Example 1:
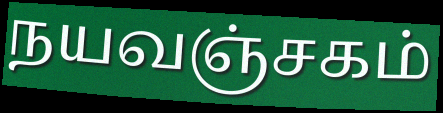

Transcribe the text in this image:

நயவஞ்சகம்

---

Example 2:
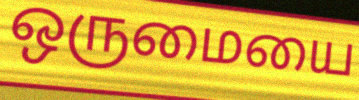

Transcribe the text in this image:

ஒருமையை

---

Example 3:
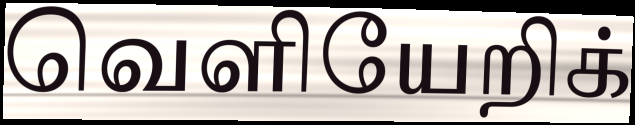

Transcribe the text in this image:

வெளியேறிக்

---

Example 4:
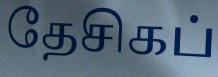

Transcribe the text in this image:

தேசிகப்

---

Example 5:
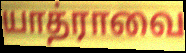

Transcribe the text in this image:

யாத்ராவை